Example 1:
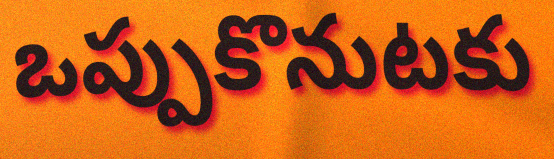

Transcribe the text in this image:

ఒప్పుకొనుటకు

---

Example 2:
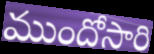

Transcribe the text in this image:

ముందోసారి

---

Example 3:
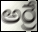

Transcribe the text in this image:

అర్రే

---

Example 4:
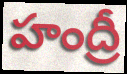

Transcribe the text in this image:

హంద్రీ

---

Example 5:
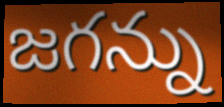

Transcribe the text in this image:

జగన్ను